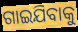
ଗାଇଯିବାକୁ